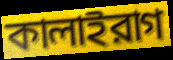
কালাইরাগ